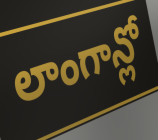
లాంగాన్లో